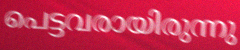
പെട്ടവരായിരുന്നു